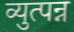
व्युत्पन्न